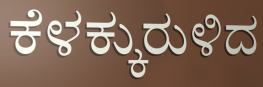
ಕೆಳಕ್ಕುರುಳಿದ